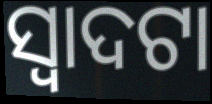
ସ୍ଵାଦଟା